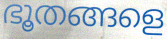
ഭൂതങ്ങളെ